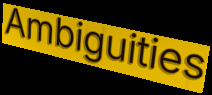
Ambiguities